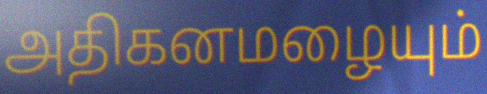
அதிகனமழையும்